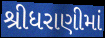
શ્રીધરાણીમાં